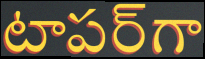
టాపర్‌గా